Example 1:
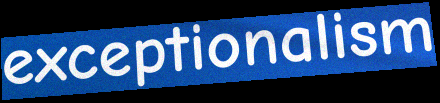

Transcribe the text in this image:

exceptionalism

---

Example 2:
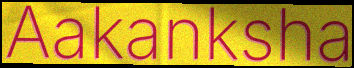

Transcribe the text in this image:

Aakanksha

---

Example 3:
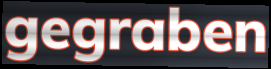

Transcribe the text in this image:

gegraben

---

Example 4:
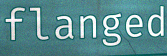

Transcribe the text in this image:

flanged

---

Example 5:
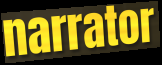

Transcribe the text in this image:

narrator